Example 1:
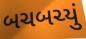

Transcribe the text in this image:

બચબચ્યું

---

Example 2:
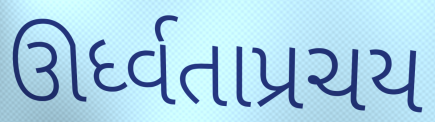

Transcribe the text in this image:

ઊર્ધ્વતાપ્રચય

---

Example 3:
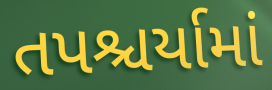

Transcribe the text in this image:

તપશ્ચર્યામાં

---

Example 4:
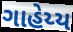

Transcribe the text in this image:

ગાહેય્ય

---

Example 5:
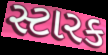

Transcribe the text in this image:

સ્ટારક